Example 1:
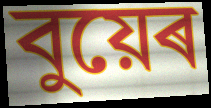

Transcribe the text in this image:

বুয়েৰ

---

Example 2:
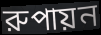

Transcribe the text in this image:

ৰুপায়ন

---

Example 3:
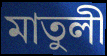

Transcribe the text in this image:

মাতুলী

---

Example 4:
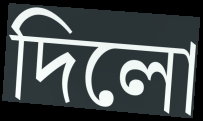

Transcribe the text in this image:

দিলো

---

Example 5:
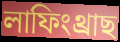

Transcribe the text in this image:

লাফিংথ্ৰাছ